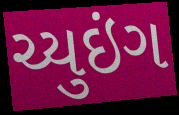
ચ્યુઇંગ